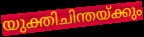
യുക്തിചിന്തയ്ക്കും